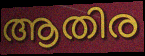
ആതിര